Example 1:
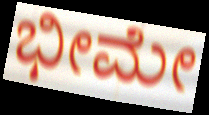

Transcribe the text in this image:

ಭೀಮೇ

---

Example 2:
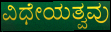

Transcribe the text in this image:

ವಿಧೇಯತ್ವವು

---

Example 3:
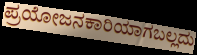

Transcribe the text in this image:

ಪ್ರಯೋಜನಕಾರಿಯಾಗಬಲ್ಲದು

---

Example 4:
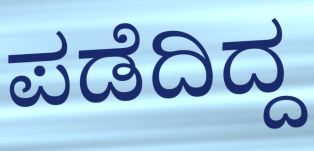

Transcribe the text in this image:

ಪಡೆದಿದ್ದ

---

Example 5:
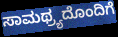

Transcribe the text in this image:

ಸಾಮಥ್ರ್ಯದೊಂದಿಗೆ